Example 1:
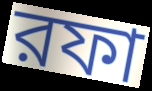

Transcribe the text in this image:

রফা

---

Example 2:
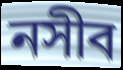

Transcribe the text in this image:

নসীব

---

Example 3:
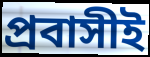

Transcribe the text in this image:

প্রবাসীই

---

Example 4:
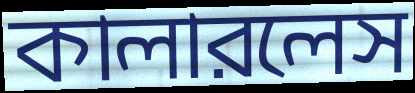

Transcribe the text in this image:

কালারলেস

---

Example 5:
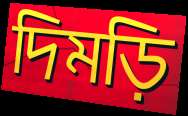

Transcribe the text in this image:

দিমড়ি